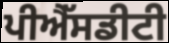
ਪੀਐੱਸਡੀਟੀ